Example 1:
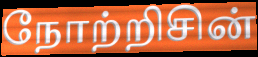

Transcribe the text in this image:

நோற்றிசின்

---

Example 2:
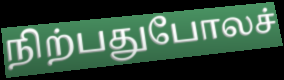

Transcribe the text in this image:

நிற்பதுபோலச்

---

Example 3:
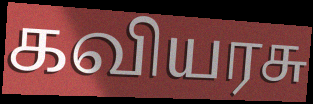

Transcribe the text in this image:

கவியரசு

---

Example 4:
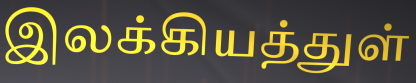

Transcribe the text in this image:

இலக்கியத்துள்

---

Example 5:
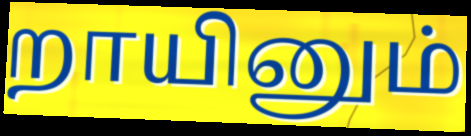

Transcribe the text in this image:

றாயினும்